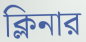
ক্লিনার